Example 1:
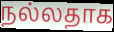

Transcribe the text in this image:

நல்லதாக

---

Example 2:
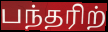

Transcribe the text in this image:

பந்தரிற்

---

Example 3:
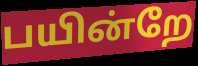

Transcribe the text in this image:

பயின்றே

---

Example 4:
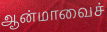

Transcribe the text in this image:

ஆன்மாவைச்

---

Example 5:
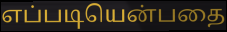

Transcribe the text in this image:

எப்படியென்பதை